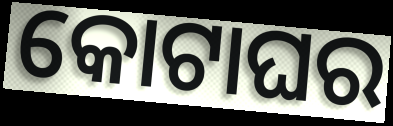
କୋଟାଘର